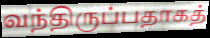
வந்திருப்பதாகத்